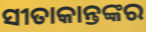
ସୀତାକାନ୍ତଙ୍କର